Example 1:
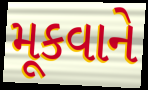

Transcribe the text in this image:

મૂકવાને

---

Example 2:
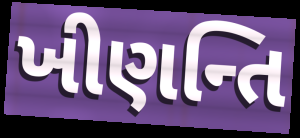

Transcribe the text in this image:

ખીણન્તિ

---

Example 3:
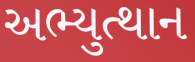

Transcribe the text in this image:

અભ્યુત્થાન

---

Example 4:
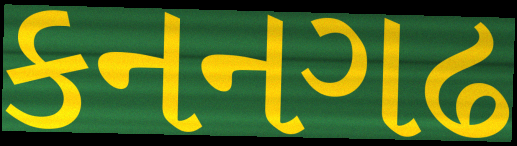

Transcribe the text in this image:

કનનગઢ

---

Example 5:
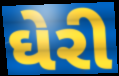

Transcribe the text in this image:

ઘેરી